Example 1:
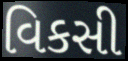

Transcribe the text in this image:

વિકસી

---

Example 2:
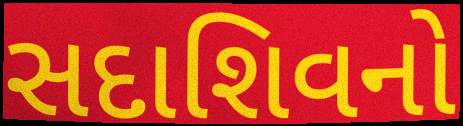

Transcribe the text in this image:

સદાશિવનો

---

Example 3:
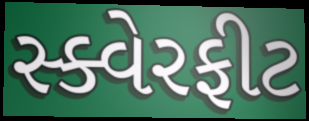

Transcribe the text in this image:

સ્ક્વેરફીટ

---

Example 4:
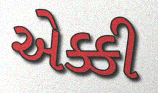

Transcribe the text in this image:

એક્કી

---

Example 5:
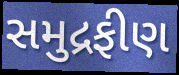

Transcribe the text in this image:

સમુદ્રફીણ